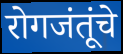
रोगजंतूंचे